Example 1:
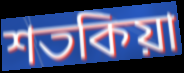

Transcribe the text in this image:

শতকিয়া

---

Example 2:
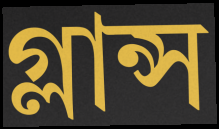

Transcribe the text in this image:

গ্লান্স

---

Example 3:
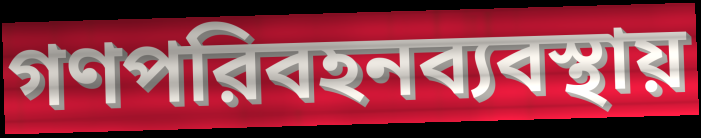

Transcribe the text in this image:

গণপরিবহনব্যবস্থায়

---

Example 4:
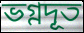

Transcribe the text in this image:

ভগ্নদূত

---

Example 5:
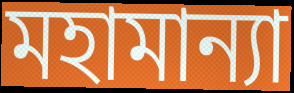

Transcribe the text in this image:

মহামান্যা